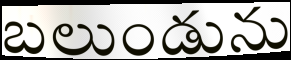
బలుండును